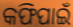
କଫିପାଇଁ